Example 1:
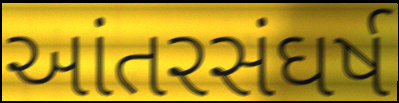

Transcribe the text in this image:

આંતરસંઘર્ષ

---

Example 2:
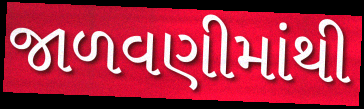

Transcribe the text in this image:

જાળવણીમાંથી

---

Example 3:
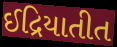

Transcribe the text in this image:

ઈદ્રિયાતીત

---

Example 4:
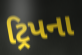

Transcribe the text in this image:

ટ્રિપના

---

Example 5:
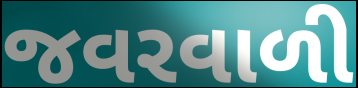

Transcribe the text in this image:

જવરવાળી